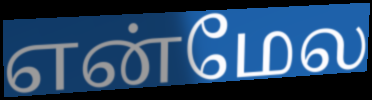
என்மேல